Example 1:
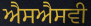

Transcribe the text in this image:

ਐਸਐਸਵੀ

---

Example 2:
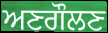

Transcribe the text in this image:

ਅਣਗੌਲਣ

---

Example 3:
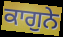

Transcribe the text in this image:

ਕਾਗੁਨੇ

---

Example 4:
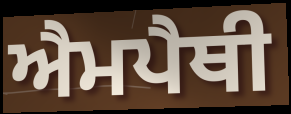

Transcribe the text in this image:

ਐਮਪੈਥੀ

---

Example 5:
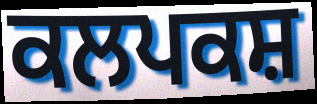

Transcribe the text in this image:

ਕਲਪਕਸ਼